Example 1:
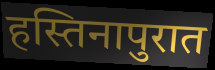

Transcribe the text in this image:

हस्तिनापुरात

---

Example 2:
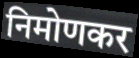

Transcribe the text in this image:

निमोणकर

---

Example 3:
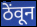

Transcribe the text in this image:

ठेंवून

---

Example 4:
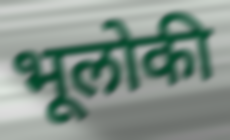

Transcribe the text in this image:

भूलोकी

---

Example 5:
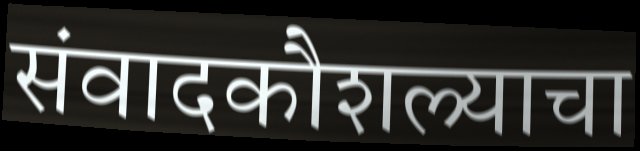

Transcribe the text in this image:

संवादकौशल्याचा